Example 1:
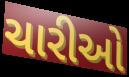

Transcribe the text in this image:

ચારીઓ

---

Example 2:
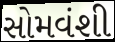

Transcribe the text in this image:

સોમવંશી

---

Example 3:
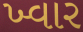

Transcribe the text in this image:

ખ્વાર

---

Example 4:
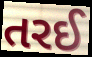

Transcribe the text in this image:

તરઈ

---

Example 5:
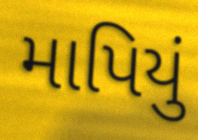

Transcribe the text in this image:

માપિયું